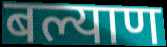
बल्याण